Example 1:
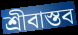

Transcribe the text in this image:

শ্রীবাস্তব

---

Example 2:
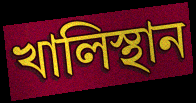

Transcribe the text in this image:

খালিস্থান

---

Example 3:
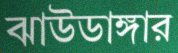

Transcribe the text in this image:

ঝাউডাঙ্গার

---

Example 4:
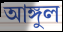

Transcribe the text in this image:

আঙ্গুল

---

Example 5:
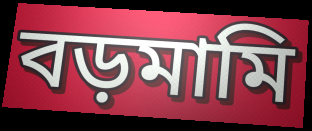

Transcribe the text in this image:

বড়মামি